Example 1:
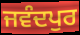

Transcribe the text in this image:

ਜਵੰਦਪੁਰ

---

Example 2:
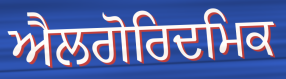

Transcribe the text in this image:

ਐਲਗੋਰਿਦਮਿਕ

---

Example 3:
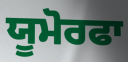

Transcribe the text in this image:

ਯੂਮੋਰਫਾ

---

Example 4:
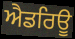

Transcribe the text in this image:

ਐਡਰਿਊ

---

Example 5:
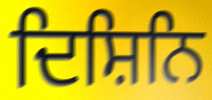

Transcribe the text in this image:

ਦਿਸ਼ਿਨਿ